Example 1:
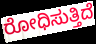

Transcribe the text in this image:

ರೋಧಿಸುತ್ತಿದೆ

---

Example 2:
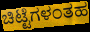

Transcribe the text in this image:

ಚಿಟ್ಟೆಗಳಂತಹ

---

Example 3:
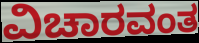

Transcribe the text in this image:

ವಿಚಾರವಂತ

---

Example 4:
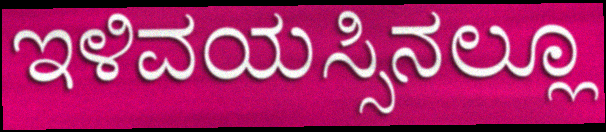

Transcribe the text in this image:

ಇಳಿವಯಸ್ಸಿನಲ್ಲೂ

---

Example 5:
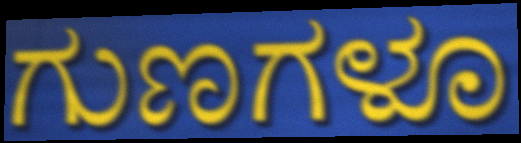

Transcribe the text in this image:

ಗುಣಗಳೂ